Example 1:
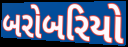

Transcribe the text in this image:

બરોબરિયો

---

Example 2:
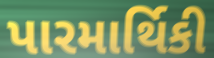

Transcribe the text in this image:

પારમાર્થિકી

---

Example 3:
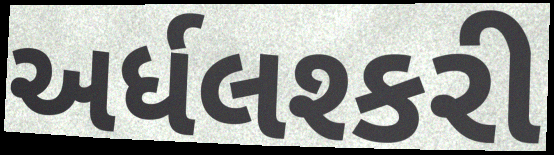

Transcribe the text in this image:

અર્ધલશ્કરી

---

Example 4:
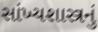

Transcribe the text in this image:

સાંખ્યશાસ્ત્રનું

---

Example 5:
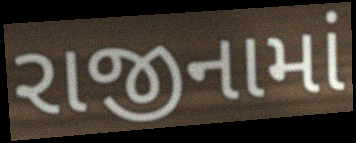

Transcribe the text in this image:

રાજીનામાં